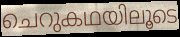
ചെറുകഥയിലൂടെ